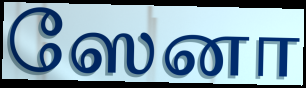
ஸேனா